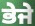
ਭੇਜੇ